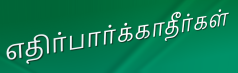
எதிர்பார்க்காதீர்கள்